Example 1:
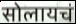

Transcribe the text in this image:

सोलायचं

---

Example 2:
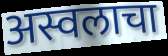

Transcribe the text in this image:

अस्वलाचा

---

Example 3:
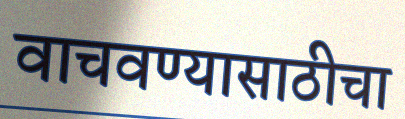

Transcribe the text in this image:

वाचवण्यासाठीचा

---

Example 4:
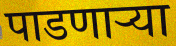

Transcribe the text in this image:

पाडणाऱ्या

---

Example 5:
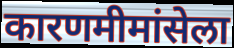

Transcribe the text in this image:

कारणमीमांसेला